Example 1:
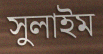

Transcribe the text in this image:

সুলাইম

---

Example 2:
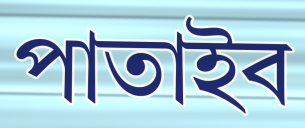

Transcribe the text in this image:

পাতাইব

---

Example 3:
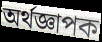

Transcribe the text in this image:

অর্থজ্ঞাপক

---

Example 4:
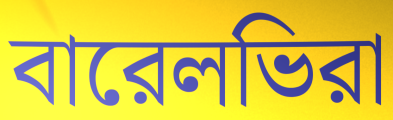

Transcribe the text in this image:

বারেলভিরা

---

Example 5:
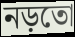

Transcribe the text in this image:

নড়তো